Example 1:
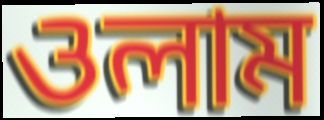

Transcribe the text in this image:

ওলাম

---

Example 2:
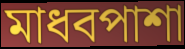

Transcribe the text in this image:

মাধবপাশা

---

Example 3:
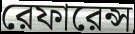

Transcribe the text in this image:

রেফারেন্স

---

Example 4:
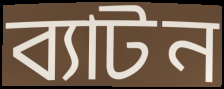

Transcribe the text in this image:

ব্যাটন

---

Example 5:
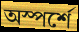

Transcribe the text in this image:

অস্পর্শে